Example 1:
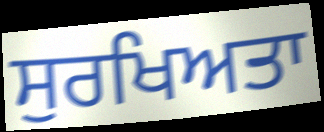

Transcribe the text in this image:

ਸੁਰਖਿਅਤਾ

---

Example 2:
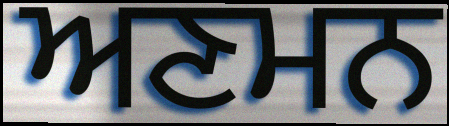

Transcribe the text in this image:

ਅਣਮਨ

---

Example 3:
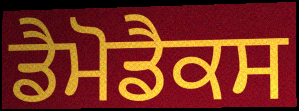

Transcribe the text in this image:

ਡੈਮੋਡੈਕਸ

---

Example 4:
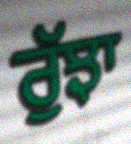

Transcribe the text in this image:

ਰੁੱਝਾ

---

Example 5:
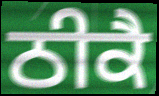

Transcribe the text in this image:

ਠੀਕੈ